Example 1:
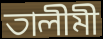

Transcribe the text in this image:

তালীমী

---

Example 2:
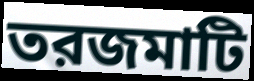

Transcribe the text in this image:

তরজমাটি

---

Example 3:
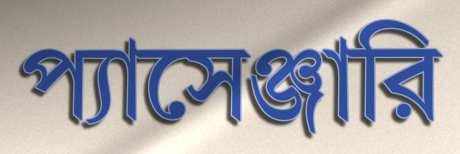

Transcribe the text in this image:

প্যাসেঞ্জারি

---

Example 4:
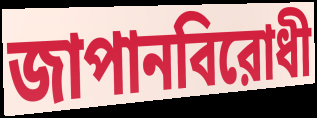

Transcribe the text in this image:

জাপানবিরোধী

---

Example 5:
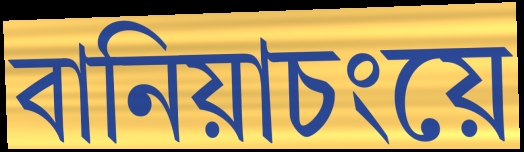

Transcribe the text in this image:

বানিয়াচংয়ে